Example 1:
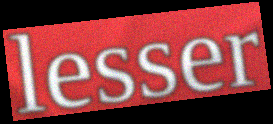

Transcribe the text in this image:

lesser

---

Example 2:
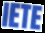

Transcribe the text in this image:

IETE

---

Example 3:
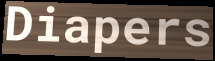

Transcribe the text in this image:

Diapers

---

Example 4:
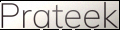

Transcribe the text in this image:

Prateek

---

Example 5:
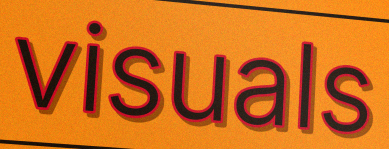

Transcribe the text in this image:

visuals